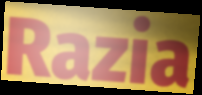
Razia